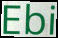
Ebi